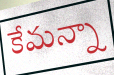
కేమన్నా